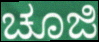
ಚೂಜಿ